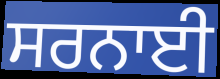
ਸਰਨਾਈ